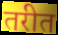
तरीत